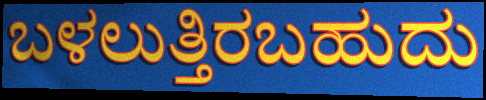
ಬಳಲುತ್ತಿರಬಹುದು